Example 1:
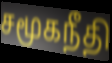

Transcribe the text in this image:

சமூகநீதி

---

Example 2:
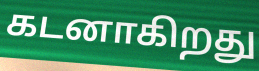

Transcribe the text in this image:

கடனாகிறது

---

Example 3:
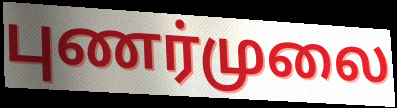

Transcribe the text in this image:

புணர்முலை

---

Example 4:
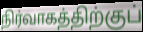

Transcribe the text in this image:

நிர்வாகத்திற்குப்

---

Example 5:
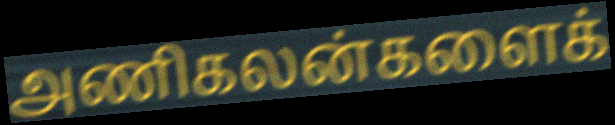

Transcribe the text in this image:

அணிகலன்களைக்